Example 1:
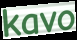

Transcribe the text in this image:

kavo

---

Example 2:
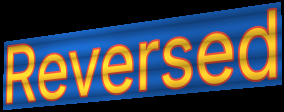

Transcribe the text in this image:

Reversed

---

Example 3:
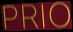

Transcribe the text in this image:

PRIO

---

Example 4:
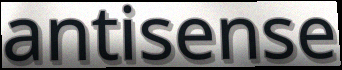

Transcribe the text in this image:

antisense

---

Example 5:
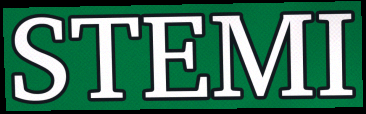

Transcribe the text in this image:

STEMI